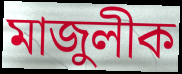
মাজুলীক